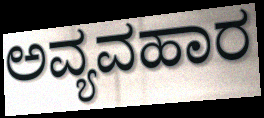
ಅವ್ಯವಹಾರ